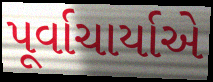
પૂર્વાચાર્યાએ